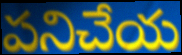
పనిచేయ